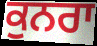
ਕੁਨਰਾ